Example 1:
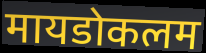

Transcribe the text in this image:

मायडोकलम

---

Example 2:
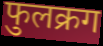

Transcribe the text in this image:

फुलक्रग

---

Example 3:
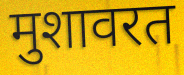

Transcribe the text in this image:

मुशावरत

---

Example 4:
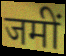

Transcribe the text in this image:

जमीं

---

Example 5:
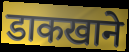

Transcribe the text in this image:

डाकखाने